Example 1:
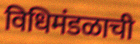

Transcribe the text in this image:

विधिमंडळाची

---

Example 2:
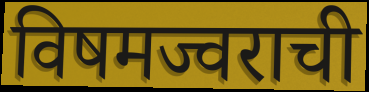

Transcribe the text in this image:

विषमज्वराची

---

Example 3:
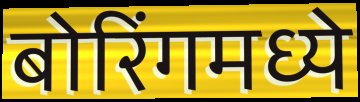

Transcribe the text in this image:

बोरिंगमध्ये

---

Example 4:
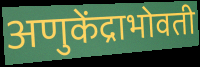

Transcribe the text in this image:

अणुकेंद्राभोवती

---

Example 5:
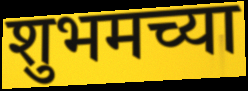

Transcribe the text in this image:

शुभमच्या